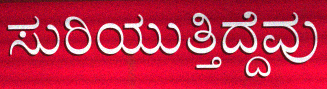
ಸುರಿಯುತ್ತಿದ್ದೆವು